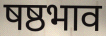
षष्ठभाव